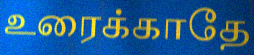
உரைக்காதே